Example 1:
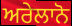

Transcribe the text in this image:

ਅਰੇਲਾਨੋ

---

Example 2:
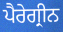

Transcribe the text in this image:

ਪੈਰੇਗ੍ਰੀਨ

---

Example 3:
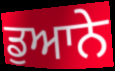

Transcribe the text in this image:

ਡੁਆਨੇ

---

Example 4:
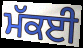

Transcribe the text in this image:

ਮੱਕਈ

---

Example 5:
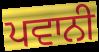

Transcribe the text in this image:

ਪਵਾਨੀ